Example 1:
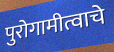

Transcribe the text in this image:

पुरोगामीत्वाचे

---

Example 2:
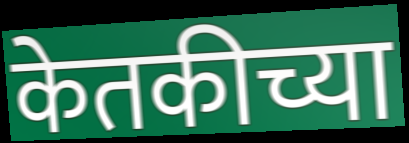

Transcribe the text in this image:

केतकीच्या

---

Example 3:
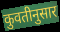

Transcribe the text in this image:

कुवतीनुसार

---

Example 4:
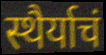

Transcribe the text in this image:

स्थैर्याचं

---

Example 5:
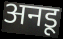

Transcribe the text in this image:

अनडू